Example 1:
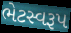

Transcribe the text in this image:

ભેટસ્વરૂપ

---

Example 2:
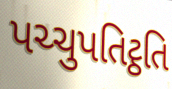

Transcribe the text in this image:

પચ્ચુપતિટ્ઠતિ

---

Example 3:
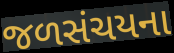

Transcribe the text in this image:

જળસંચયના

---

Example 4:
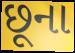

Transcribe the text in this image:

છૂના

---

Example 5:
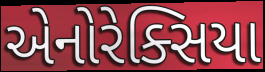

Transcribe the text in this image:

એનોરેક્સિયા